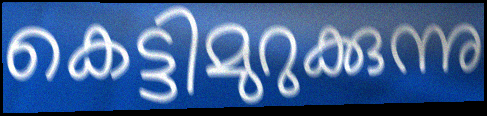
കെട്ടിമുറുക്കുന്നു